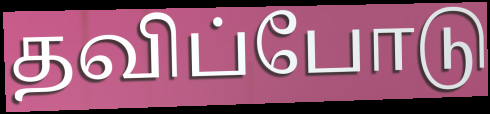
தவிப்போடு